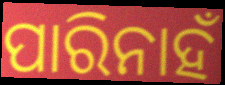
ପାରିନାହଁ